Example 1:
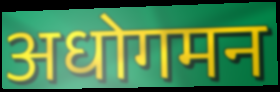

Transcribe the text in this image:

अधोगमन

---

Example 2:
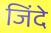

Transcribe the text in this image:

जिंदे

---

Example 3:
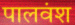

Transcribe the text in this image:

पालवंश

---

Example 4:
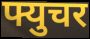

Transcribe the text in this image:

फ्युचर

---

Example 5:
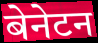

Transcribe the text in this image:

बेनेटन